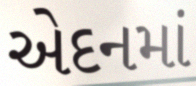
એદનમાં